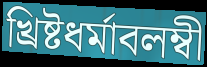
খ্রিষ্টধর্মাবলম্বী